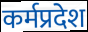
कर्मप्रदेश